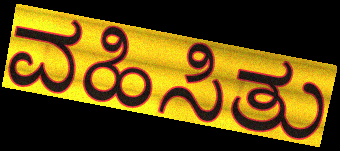
ವಹಿಸಿತು